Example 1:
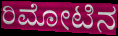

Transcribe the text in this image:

ರಿಮೋಟಿನ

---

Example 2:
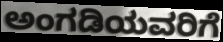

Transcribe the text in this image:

ಅಂಗಡಿಯವರಿಗೆ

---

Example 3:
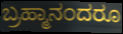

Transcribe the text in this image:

ಬ್ರಹ್ಮಾನಂದರೂ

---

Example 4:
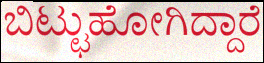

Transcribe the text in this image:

ಬಿಟ್ಟುಹೋಗಿದ್ದಾರೆ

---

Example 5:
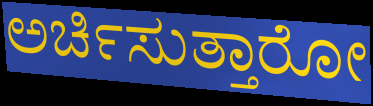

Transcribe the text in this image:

ಅರ್ಚಿಸುತ್ತಾರೋ